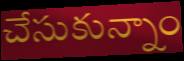
చేసుకున్నాం